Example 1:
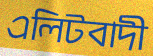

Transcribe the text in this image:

এলিটবাদী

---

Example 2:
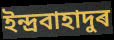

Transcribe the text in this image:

ইন্দ্ৰবাহাদুৰ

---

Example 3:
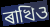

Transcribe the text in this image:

ৰাখিও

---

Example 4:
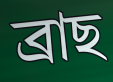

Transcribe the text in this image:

ব্ৰাছ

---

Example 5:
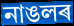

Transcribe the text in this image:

নাঙলৰ